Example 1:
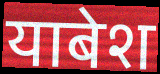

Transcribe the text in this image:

याबेश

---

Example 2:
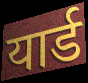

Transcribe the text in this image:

यार्ड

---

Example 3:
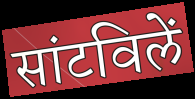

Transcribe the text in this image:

सांटविलें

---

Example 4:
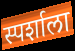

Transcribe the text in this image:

स्पर्शाला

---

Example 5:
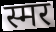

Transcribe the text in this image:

स्मर